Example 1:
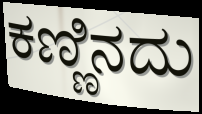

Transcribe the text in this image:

ಕಣ್ಣಿನದು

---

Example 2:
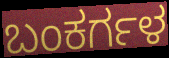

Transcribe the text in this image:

ಬಂಕರ್ಗಳ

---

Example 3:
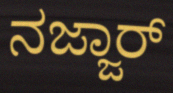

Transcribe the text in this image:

ನಜ್ಜಾರ್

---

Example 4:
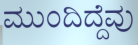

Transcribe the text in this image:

ಮುಂದಿದ್ದೆವು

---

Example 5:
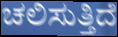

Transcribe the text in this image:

ಚಲಿಸುತ್ತಿದೆ